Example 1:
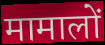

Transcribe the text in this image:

मामालों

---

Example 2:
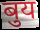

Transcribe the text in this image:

बुय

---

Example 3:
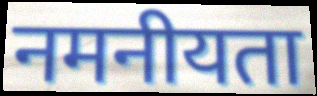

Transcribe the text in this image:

नमनीयता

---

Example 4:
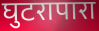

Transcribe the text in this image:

घुटरापारा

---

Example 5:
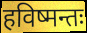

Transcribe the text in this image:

हविष्मन्तः